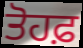
ਤੋਹਫ਼